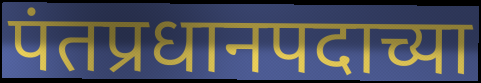
पंतप्रधानपदाच्या